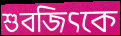
শুবজিৎকে